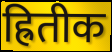
ह्रितीक